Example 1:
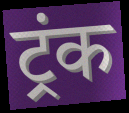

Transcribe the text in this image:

ट्रंक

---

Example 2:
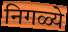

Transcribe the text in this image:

निगळ्ये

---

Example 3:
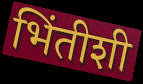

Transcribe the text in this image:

भिंतीशी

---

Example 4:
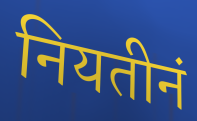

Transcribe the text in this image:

नियतीनं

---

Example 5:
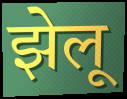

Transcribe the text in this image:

झेलू